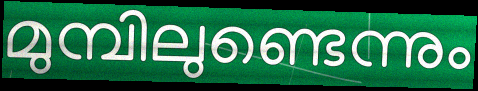
മുമ്പിലുണ്ടെന്നും